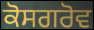
ਕੋਸਗਰੋਵ